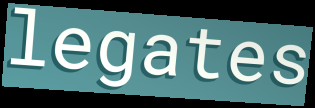
legates